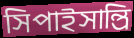
সিপাইসান্ত্রি